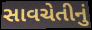
સાવચેતીનું